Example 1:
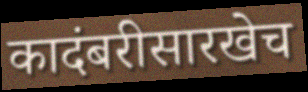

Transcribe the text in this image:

कादंबरीसारखेच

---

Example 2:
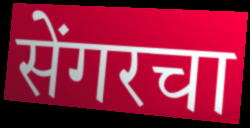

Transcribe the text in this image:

सेंगरचा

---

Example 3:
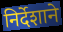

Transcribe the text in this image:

निर्देशाने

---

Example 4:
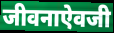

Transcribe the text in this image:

जीवनाऐवजी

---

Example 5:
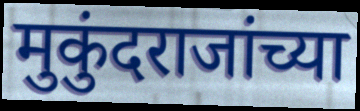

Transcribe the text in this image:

मुकुंदराजांच्या